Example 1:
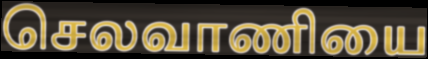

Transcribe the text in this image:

செலவாணியை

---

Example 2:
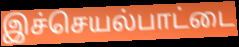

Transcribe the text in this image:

இச்செயல்பாட்டை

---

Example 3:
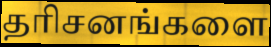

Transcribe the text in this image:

தரிசனங்களை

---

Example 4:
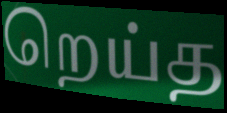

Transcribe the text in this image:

றெய்த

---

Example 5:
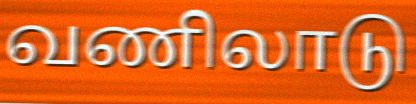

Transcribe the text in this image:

வணிலாடு